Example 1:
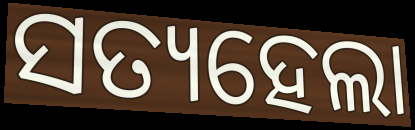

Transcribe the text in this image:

ସତ୍ୟହେଲା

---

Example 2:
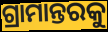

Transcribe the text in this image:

ଗ୍ରାମାନ୍ତରକୁ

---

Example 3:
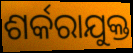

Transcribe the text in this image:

ଶର୍କରାଯୁକ୍ତ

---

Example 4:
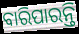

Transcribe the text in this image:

ବାରିପାରନ୍ତି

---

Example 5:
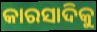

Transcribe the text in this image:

କାରସାଦିକୁ